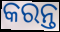
କରନ୍ତ